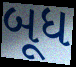
બૂધ